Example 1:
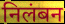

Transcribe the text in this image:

निलंबन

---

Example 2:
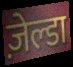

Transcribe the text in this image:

ज़ेल्डा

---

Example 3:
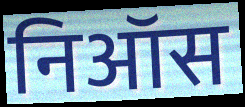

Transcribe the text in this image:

निऑस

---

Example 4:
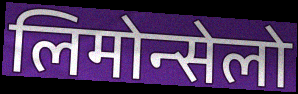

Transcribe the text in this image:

लिमोन्सेलो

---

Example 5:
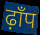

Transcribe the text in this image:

ढ़ाँप